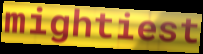
mightiest